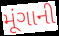
મૂંગાની